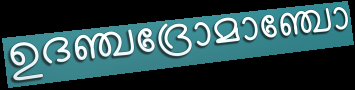
ഉദഞ്ചദ്രോമാഞ്ചോ